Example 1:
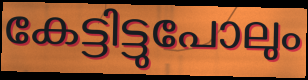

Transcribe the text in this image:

കേട്ടിട്ടുപോലും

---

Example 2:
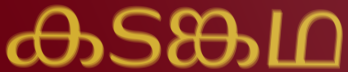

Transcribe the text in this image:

കടങ്കഥ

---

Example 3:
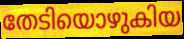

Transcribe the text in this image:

തേടിയൊഴുകിയ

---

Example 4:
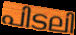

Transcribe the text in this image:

പിടലി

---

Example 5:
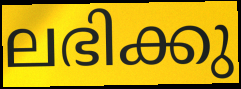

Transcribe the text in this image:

ലഭിക്കു